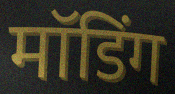
मॉडिंग